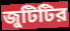
জুটিটির